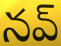
నవ్